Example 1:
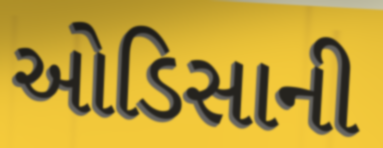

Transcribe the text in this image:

ઓડિસાની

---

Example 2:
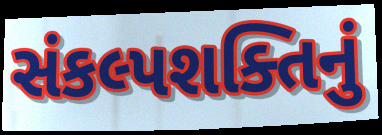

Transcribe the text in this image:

સંકલ્પશક્તિનું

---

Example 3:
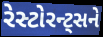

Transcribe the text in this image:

રેસ્ટોરન્ટ્સને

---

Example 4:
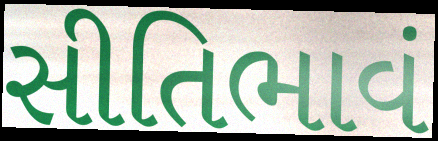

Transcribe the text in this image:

સીતિભાવં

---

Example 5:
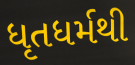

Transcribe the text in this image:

ધૃતધર્મથી